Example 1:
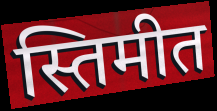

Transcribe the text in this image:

स्तिमीत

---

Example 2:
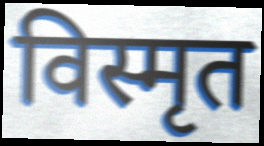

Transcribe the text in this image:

विस्मृत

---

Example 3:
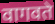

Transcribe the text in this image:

वागवते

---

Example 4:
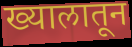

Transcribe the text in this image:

ख्यालातून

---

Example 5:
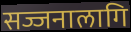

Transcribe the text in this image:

सज्जनालागि